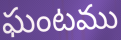
ఘంటము